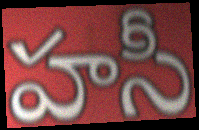
హసీ